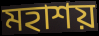
মহাশয়